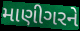
માણીગરને